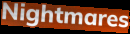
Nightmares